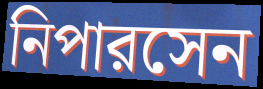
নিপারসেন